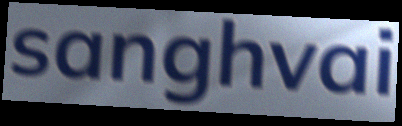
sanghvai